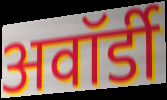
अवॉर्डी